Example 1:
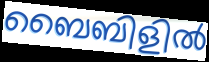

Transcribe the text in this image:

ബൈബിളിൽ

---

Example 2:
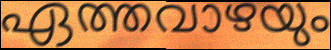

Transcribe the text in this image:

ഏത്തവാഴയും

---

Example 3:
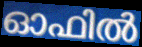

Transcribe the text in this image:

ഓഫിൽ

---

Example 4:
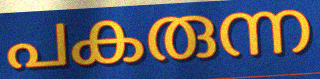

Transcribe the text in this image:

പകരുന്ന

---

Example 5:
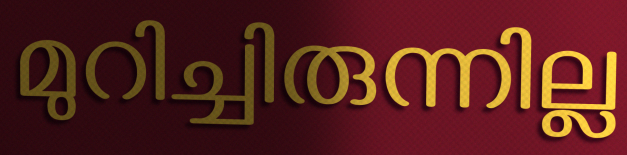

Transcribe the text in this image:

മുറിച്ചിരുന്നില്ല